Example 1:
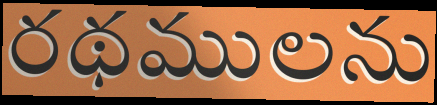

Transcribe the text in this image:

రథములను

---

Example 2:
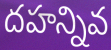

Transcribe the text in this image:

దహన్నివ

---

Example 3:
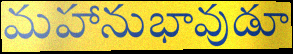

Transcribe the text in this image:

మహానుభావుడూ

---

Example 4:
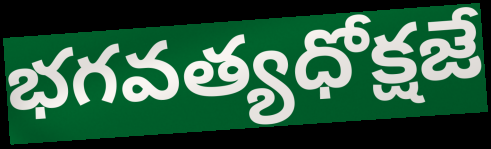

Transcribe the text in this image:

భగవత్యధోక్షజే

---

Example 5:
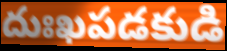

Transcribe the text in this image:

దుఃఖపడకుడి